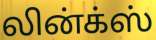
லின்க்ஸ்